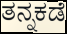
ತನ್ನಕಡೆ